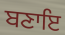
ਬਣਾਇ